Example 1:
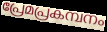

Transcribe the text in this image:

പ്രേമപ്രകമ്പനം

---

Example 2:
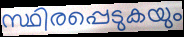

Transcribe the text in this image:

സ്ഥിരപ്പെടുകയും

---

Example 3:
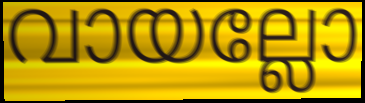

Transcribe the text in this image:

വായല്ലോ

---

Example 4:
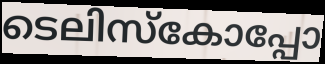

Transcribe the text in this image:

ടെലിസ്കോപ്പോ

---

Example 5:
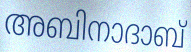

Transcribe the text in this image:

അബിനാദാബ്